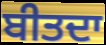
ਬੀਤਦਾ